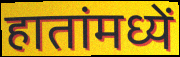
हातांमध्यें